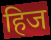
हिज